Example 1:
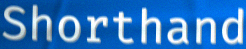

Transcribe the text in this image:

Shorthand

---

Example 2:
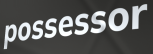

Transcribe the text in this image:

possessor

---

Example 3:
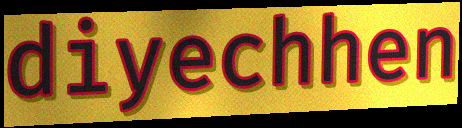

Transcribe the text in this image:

diyechhen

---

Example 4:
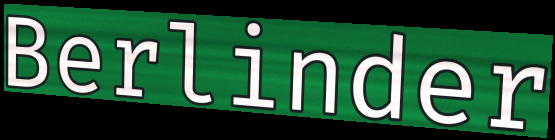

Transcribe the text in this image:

Berlinder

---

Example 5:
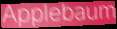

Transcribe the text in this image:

Applebaum